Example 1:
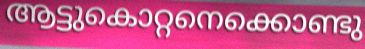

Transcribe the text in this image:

ആട്ടുകൊറ്റനെക്കൊണ്ടു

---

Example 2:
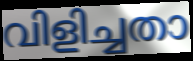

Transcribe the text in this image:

വിളിച്ചതാ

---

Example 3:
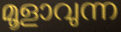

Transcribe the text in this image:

മൂളാവുന്ന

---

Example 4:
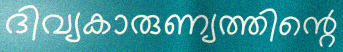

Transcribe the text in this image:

ദിവ്യകാരുണ്യത്തിന്റെ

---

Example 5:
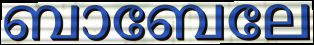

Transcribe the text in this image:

ബാബേലേ